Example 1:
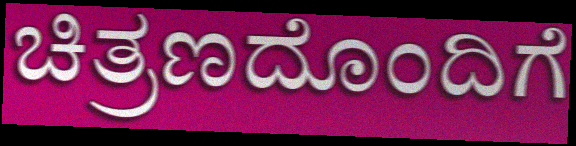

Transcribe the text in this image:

ಚಿತ್ರಣದೊಂದಿಗೆ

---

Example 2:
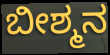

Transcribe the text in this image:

ಬೀಶ್ಮನ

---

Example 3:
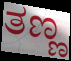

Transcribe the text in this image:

ತಣ್ಣ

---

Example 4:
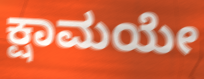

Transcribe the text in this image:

ಕ್ಷಾಮಯೇ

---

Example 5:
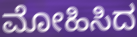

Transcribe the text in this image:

ಮೋಹಿಸಿದ